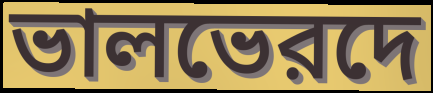
ভালভেরদে